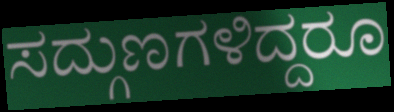
ಸದ್ಗುಣಗಳಿದ್ದರೂ